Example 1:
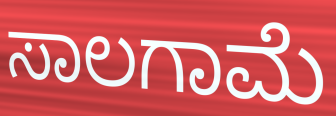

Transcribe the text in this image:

ಸಾಲಗಾಮೆ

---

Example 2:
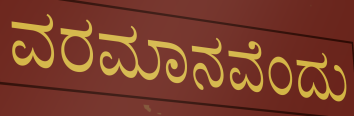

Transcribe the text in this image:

ವರಮಾನವೆಂದು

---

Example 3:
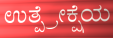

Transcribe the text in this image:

ಉತ್ಪ್ರೇಕ್ಷೆಯ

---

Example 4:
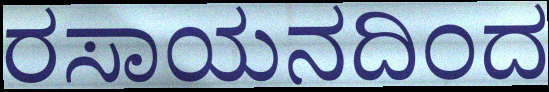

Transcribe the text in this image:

ರಸಾಯನದಿಂದ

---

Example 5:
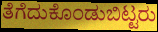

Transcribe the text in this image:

ತೆಗೆದುಕೊಂಡುಬಿಟ್ಟರು